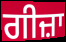
ਗੀਜ਼ਾ